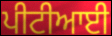
ਪੀਟੀਆਈ